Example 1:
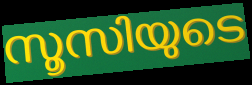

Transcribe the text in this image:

സൂസിയുടെ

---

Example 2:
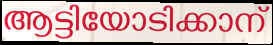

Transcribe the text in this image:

ആട്ടിയോടിക്കാന്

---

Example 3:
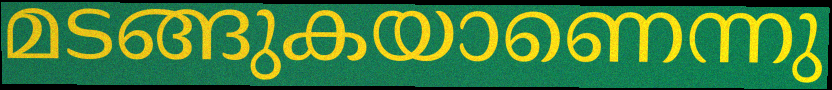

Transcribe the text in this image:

മടങ്ങുകയാണെന്നു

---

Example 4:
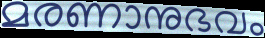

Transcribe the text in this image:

മരണാനുഭവം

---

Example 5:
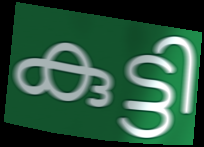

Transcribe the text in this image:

കുട്ടി